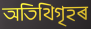
অতিথিগৃহৰ